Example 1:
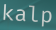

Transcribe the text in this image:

kalp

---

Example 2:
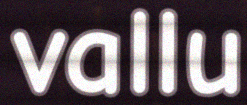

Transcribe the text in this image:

vallu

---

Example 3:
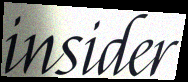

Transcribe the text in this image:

insider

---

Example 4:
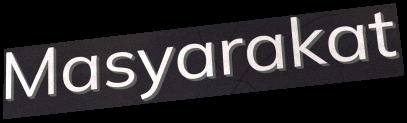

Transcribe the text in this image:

Masyarakat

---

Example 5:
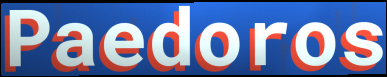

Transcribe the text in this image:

Paedoros